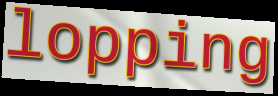
lopping